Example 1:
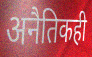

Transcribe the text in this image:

अनैतिकही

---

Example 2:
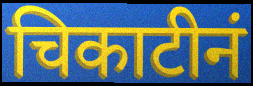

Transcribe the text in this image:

चिकाटीनं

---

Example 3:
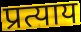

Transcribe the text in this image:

प्रत्याय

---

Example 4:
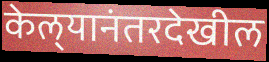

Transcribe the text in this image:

केल्यानंतरदेखील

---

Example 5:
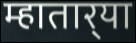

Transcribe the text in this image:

म्हातार्‍या